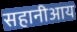
सहानीआय